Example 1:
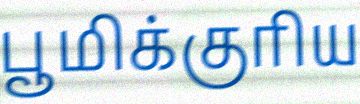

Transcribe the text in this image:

பூமிக்குரிய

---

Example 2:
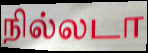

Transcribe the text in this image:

நில்லடா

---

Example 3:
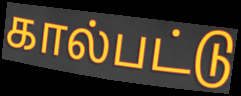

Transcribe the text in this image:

கால்பட்டு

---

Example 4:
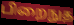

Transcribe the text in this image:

பிறைநுத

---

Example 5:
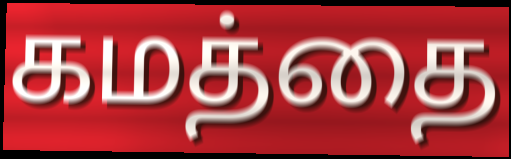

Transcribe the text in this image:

கமத்தை